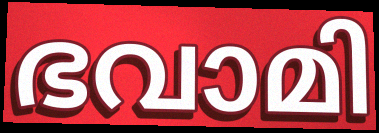
ഭവാമി